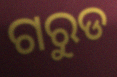
ଗରୁଡ